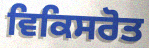
ਵਿਕਿਸਰੋਤ